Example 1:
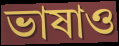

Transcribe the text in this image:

ভাষাও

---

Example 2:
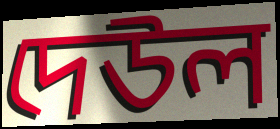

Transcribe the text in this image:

দেউল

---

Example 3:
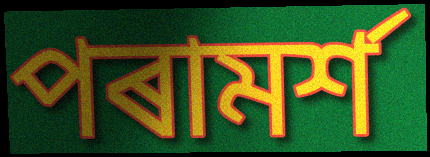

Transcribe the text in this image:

পৰামৰ্শ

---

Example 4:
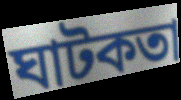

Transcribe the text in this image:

ঘাটকতা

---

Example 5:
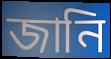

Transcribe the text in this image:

জানি